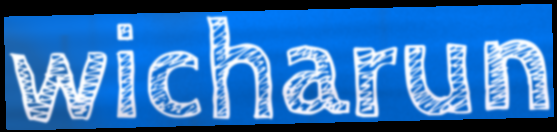
wicharun